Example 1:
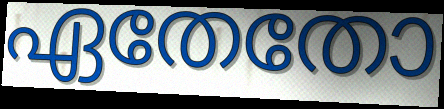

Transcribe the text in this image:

ഏതേതോ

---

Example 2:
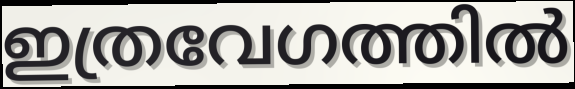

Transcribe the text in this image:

ഇത്രവേഗത്തിൽ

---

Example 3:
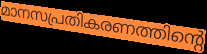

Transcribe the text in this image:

മാനസപ്രതികരണത്തിന്റെ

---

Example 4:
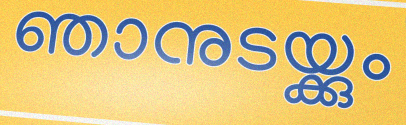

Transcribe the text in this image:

ഞാനുടയ്ക്കും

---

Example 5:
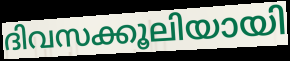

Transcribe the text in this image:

ദിവസക്കൂലിയായി